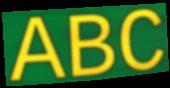
ABC